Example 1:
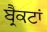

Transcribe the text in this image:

ਬ੍ਰੈਕਟਾਂ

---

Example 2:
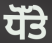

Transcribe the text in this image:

ਧੋੱਤੇ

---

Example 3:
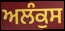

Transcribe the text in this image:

ਅਲੰਕੁਸ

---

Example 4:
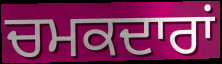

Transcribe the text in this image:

ਚਮਕਦਾਰਾਂ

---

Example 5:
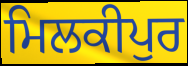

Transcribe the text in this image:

ਮਿਲਕੀਪੁਰ